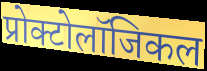
प्रोक्टोलॉजिकल